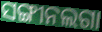
ସଙ୍ଗୀନଲଗା